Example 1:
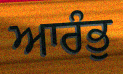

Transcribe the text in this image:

ਆਰੰਭੁ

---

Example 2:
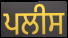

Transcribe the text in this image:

ਪਲੀਸ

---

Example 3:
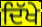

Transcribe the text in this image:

ਦਿੱਖੇ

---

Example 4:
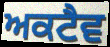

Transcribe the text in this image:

ਅਕਟੈਵ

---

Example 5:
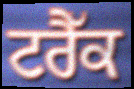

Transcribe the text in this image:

ਟਰੈੱਕ